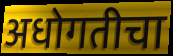
अधोगतीचा